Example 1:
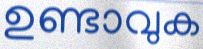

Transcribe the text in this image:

ഉണ്ടാവുക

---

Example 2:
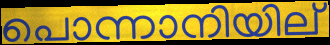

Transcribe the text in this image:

പൊന്നാനിയില്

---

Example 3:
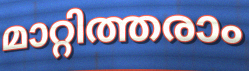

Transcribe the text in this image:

മാറ്റിത്തരാം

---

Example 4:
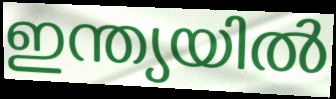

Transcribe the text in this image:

ഇന്ത്യയിൽ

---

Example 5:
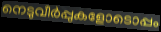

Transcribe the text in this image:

നെടുവീർപ്പുകളോടൊപ്പം